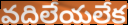
వదిలేయలేక